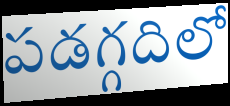
పడగ్గదిలో